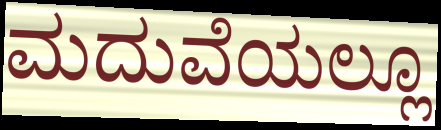
ಮದುವೆಯಲ್ಲೂ